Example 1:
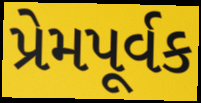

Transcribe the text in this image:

પ્રેમપૂર્વક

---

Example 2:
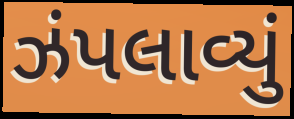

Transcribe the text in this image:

ઝંપલાવ્યું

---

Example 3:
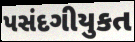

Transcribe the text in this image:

પસંદગીયુકત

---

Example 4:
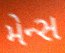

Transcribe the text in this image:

મેન્સ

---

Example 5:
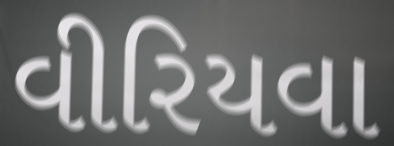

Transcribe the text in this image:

વીરિયવા